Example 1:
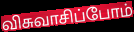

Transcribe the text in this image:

விசுவாசிப்போம்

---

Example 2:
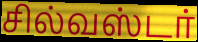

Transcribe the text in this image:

சில்வஸ்டர்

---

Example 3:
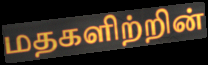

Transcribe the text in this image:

மதகளிற்றின்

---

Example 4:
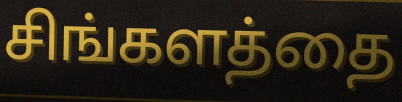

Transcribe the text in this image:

சிங்களத்தை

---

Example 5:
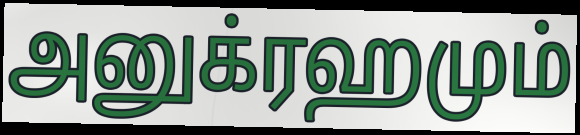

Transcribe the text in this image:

அனுக்ரஹமும்